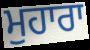
ਮੁਹਾਰਾ